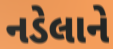
નડેલાને